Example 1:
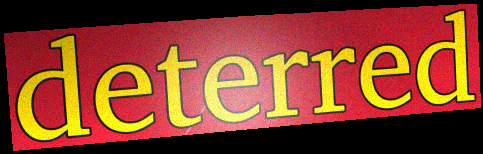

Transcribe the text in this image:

deterred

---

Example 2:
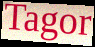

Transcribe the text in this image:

Tagor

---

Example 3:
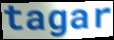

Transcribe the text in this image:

tagar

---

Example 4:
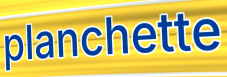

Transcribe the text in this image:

planchette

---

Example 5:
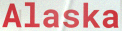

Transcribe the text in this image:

Alaska